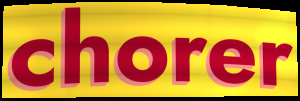
chorer